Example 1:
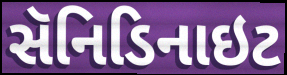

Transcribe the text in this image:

સૅનિડિનાઇટ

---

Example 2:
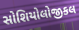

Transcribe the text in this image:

સોશિયોલોજીકલ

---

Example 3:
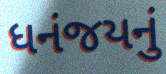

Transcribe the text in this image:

ધનંજયનું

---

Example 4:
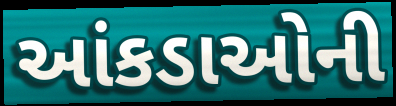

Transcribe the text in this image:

આંકડાઓની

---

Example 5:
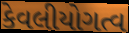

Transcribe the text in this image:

કેવલીયોગત્વ